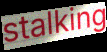
stalking